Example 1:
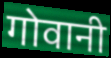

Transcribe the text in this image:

गोवानी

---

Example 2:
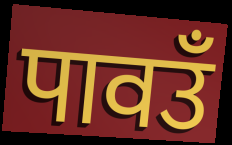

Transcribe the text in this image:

पावउँ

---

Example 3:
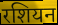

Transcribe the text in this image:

रशियन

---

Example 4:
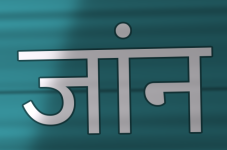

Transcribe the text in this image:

जांन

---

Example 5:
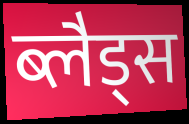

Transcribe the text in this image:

ब्लैड्स